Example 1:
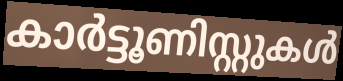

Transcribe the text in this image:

കാർട്ടൂണിസ്റ്റുകൾ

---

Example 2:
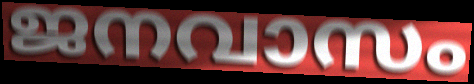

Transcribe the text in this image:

ജനവാസം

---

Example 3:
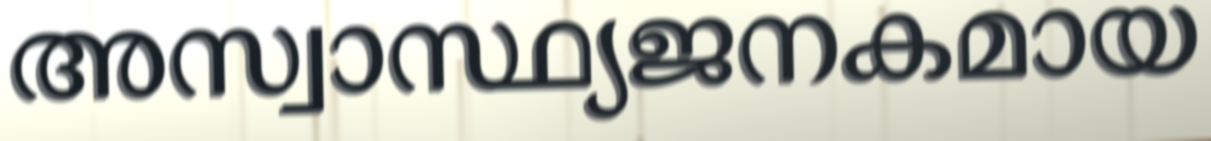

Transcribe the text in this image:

അസ്വാസ്ഥ്യജനകമായ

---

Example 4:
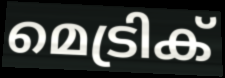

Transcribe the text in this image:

മെട്രിക്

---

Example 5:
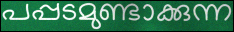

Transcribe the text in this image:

പപ്പടമുണ്ടാക്കുന്ന